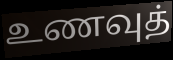
உணவுத்